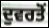
ਦੁਵਰਤੋਂ